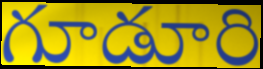
గూడూరి